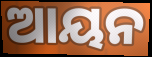
ଆୟନ